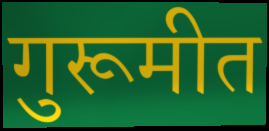
गुरूमीत